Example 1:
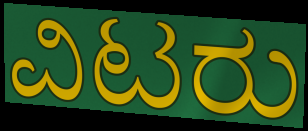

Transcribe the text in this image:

ವಿಟರು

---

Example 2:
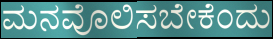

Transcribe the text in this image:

ಮನವೊಲಿಸಬೇಕೆಂದು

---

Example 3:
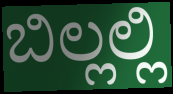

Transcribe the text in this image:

ಬಿಲ್ಲಲ್ಲಿ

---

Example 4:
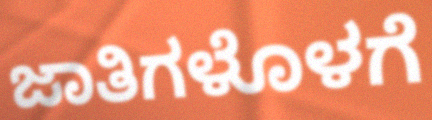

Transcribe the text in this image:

ಜಾತಿಗಳೊಳಗೆ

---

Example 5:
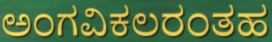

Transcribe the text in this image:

ಅಂಗವಿಕಲರಂತಹ